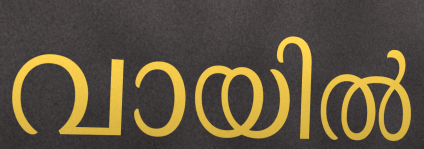
വായിൽ